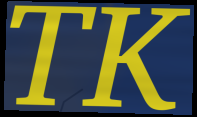
TK